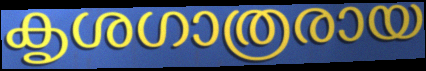
കൃശഗാത്രരായ